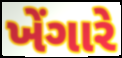
ખેંગારે